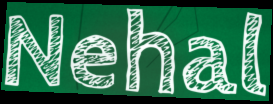
Nehal